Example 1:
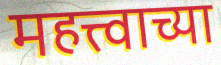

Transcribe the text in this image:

महत्त्वाच्या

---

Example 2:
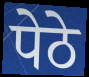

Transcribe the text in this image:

पेठे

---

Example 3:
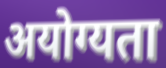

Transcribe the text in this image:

अयोग्यता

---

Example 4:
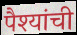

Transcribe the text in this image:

पैश्यांची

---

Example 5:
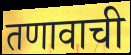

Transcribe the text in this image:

तणावाची